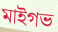
মাইগভ